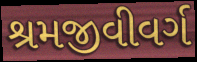
શ્રમજીવીવર્ગ